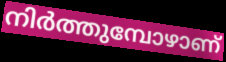
നിർത്തുമ്പോഴാണ്